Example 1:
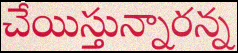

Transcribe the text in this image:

చేయిస్తున్నారన్న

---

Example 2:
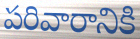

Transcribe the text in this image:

పరివారానికి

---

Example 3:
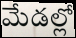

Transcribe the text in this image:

మేడల్లో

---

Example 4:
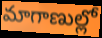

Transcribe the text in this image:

మాగాణుల్లో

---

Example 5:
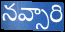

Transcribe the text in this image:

నవ్సారి